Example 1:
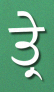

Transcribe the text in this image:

ਤ੍ਰੇ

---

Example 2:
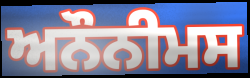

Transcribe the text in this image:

ਅਨੌਨੀਮਸ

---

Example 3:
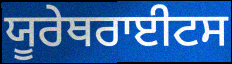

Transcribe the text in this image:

ਯੂਰੇਥਰਾਈਟਸ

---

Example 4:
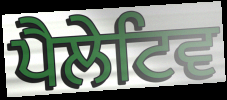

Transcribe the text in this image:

ਪੈਲੇਟਿਵ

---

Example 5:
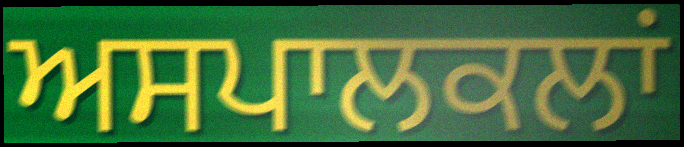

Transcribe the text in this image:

ਅਸਪਾਲਕਲਾਂ